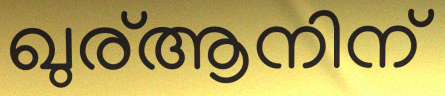
ഖുര്ആനിന്